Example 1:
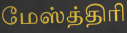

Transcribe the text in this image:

மேஸ்த்திரி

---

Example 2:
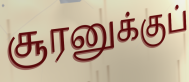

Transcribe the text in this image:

சூரனுக்குப்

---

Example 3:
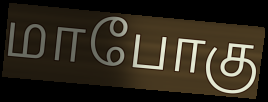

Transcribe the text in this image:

மாபோகு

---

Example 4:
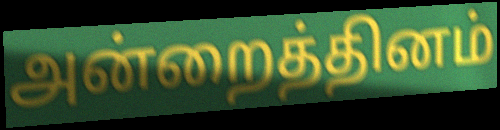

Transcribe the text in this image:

அன்றைத்தினம்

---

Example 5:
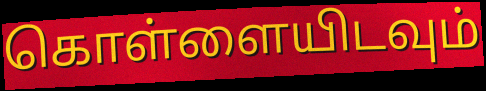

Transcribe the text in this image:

கொள்ளையிடவும்